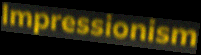
Impressionism